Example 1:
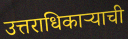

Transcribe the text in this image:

उत्तराधिकाऱ्याची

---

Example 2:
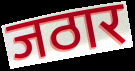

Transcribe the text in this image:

जठार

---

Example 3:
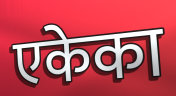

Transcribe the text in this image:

एकेका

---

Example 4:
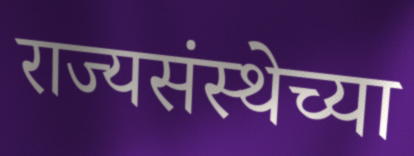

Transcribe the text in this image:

राज्यसंस्थेच्या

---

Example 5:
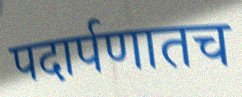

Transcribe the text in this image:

पदार्पणातच